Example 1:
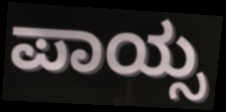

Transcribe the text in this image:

ಪಾಯ್ಸ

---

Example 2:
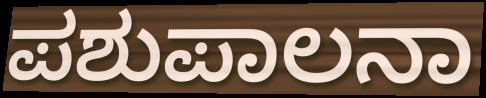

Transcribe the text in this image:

ಪಶುಪಾಲನಾ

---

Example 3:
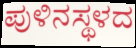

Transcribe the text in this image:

ಪುಳಿನಸ್ಥಳದ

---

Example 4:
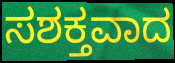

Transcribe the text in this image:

ಸಶಕ್ತವಾದ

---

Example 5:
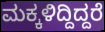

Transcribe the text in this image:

ಮಕ್ಕಳಿದ್ದಿದ್ದರೆ